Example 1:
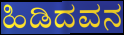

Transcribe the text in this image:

ಹಿಡಿದವನ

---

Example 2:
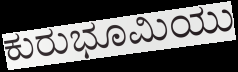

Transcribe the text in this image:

ಕುರುಭೂಮಿಯು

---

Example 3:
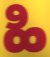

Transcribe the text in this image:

ಹಿ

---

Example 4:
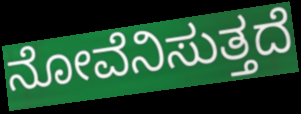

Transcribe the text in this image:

ನೋವೆನಿಸುತ್ತದೆ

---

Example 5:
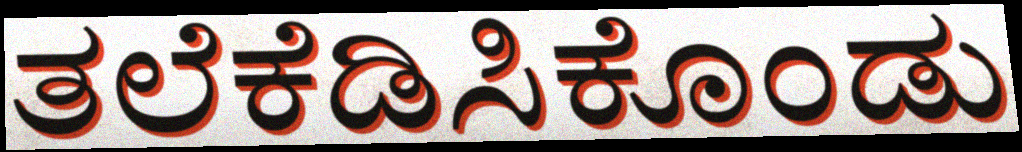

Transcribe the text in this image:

ತಲೆಕೆಡಿಸಿಕೊಂಡು